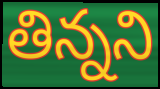
తిన్నని